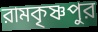
রামকৃষ্ণপুর